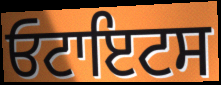
ਓਟਾਇਟਸ